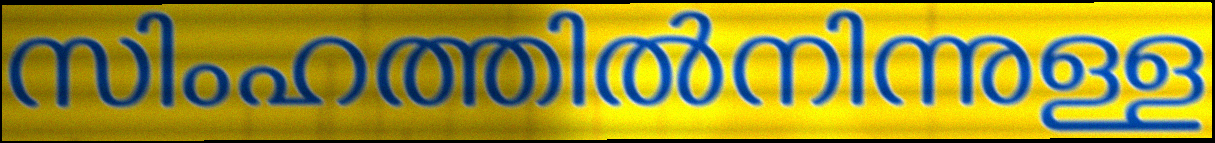
സിംഹത്തിൽനിന്നുള്ള